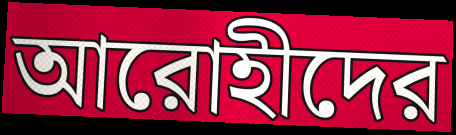
আরোহীদের